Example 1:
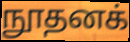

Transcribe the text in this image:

நூதனக்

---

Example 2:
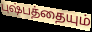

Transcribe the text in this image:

புஷ்பத்தையும்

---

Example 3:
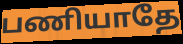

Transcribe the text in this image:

பணியாதே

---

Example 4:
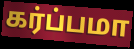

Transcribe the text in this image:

கர்ப்பமா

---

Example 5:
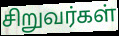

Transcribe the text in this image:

சிறுவர்கள்